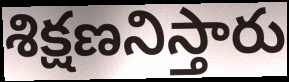
శిక్షణనిస్తారు